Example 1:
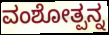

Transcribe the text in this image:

ವಂಶೋತ್ಪನ್ನ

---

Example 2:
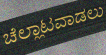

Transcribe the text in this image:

ಚೆಲ್ಲಾಟವಾಡಲು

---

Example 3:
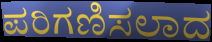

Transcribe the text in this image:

ಪರಿಗಣಿಸಲಾದ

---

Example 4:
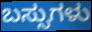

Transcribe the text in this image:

ಬಸ್ಸುಗಳು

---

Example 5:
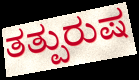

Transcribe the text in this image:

ತತ್ಪುರುಷ